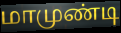
மாமுண்டி